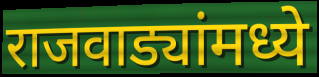
राजवाड्यांमध्ये